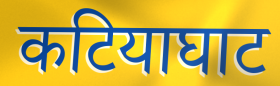
कटियाघाट